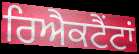
ਰਿਐਕਟੈਂਟਾਂ